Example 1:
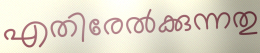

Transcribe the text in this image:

എതിരേൽക്കുന്നതു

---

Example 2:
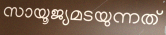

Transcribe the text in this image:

സായൂജ്യമടയുന്നത്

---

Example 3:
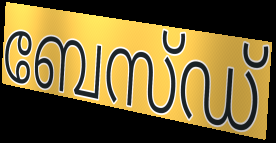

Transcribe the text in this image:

ബേസ്ഡ്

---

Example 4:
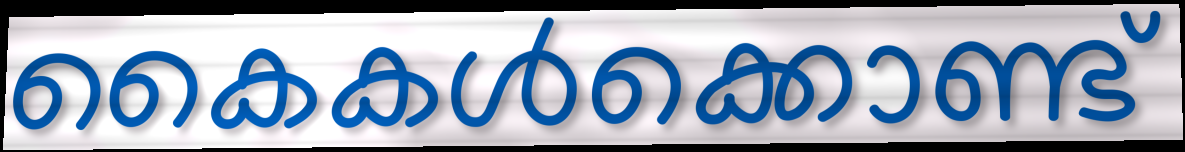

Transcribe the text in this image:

കൈകൾക്കൊണ്ട്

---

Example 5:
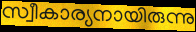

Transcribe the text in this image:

സ്വീകാര്യനായിരുന്നു